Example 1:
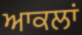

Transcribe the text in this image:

ਆਕਲਾਂ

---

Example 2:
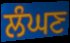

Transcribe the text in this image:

ਲੰਘਣ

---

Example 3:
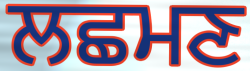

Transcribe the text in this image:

ਲਛਮਣ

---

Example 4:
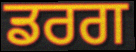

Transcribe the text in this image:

ਡਰਗ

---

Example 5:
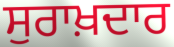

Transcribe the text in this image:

ਸੁਰਾਖ਼ਦਾਰ